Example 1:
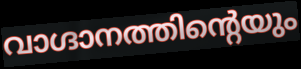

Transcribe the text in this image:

വാഗ്ദാനത്തിന്റെയും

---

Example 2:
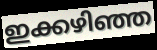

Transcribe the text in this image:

ഇക്കഴിഞ്ഞ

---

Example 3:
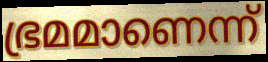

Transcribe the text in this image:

ഭ്രമമാണെന്ന്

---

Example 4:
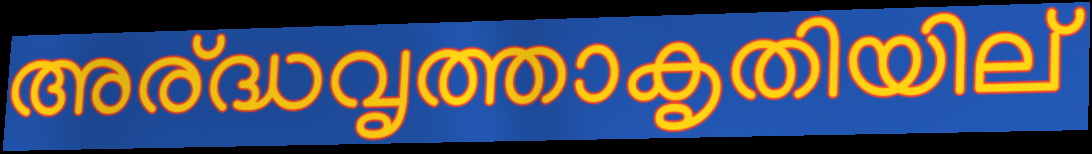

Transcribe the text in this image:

അര്ദ്ധവൃത്താകൃതിയില്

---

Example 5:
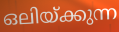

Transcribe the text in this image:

ഒലിയ്ക്കുന്ന